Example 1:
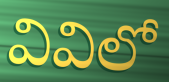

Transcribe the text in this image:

వివిలో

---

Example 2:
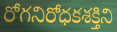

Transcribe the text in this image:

రోగనిరోధకశక్తిని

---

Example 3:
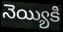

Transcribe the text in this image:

నెయ్యికి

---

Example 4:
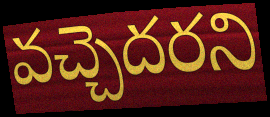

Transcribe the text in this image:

వచ్చెదరని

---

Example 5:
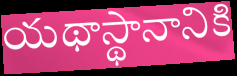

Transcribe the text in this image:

యథాస్థానానికి